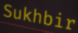
Sukhbir